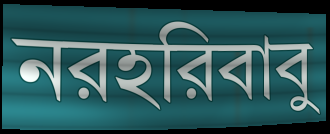
নরহরিবাবু